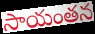
సాయంతన